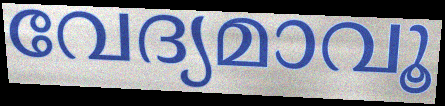
വേദ്യമാവൂ